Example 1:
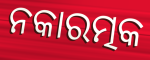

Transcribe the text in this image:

ନକାରତ୍ମକ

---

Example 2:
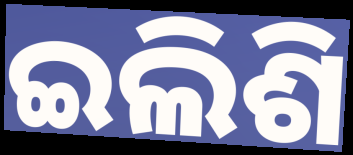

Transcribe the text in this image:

ଇଲିଶି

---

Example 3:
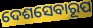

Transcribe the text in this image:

ଦେଶସେବାରୂପ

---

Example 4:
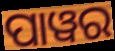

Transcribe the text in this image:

ପାୱର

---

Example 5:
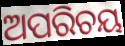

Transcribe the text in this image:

ଅପରିଚୟ